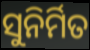
ସୁନିର୍ମିତ